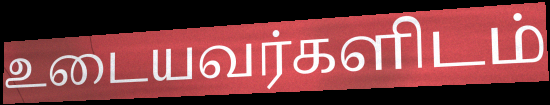
உடையவர்களிடம்